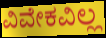
ವಿವೇಕವಿಲ್ಲ